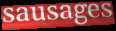
sausages